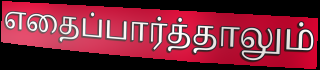
எதைப்பார்த்தாலும்